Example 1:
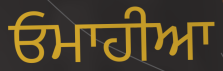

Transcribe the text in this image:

ਓਮਾਹੀਆ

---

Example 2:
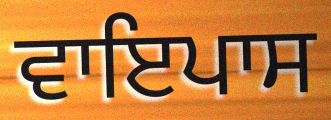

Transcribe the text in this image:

ਵਾਇਪਾਸ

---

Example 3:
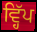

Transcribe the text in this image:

ਵ੍ਹਿੱਪ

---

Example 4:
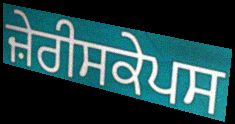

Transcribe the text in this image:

ਜ਼ੇਰੀਸਕੇਪਸ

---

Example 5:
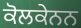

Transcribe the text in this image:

ਕੋਲਕੇਨਨ